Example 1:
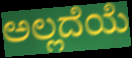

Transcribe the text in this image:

ಅಲ್ಲದೆಯೆ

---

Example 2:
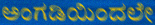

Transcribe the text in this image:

ಅಂಗಡಿಯಿಂದಲೇ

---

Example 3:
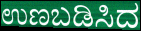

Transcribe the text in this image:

ಉಣಬಡಿಸಿದ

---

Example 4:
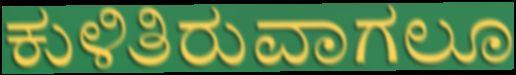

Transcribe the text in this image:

ಕುಳಿತಿರುವಾಗಲೂ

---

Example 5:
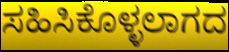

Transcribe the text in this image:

ಸಹಿಸಿಕೊಳ್ಳಲಾಗದ